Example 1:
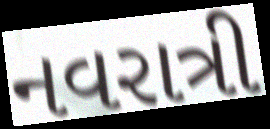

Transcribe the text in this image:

નવરાત્રી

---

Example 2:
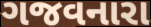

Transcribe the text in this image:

ગજવનારા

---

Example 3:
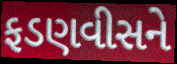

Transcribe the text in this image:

ફડણવીસને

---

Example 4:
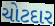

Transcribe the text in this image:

ચોટદાર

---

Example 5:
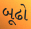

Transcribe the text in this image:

બૂઢો